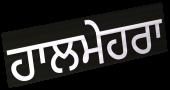
ਹਾਲਮੇਹਰਾ